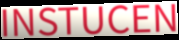
INSTUCEN